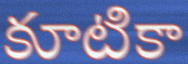
కూటికా